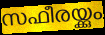
സഫീരയ്ക്കും